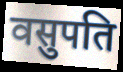
वसुपति